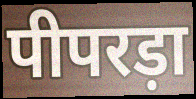
पीपरड़ा